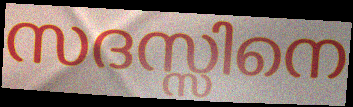
സദസ്സിനെ